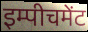
इम्पीचमेंट